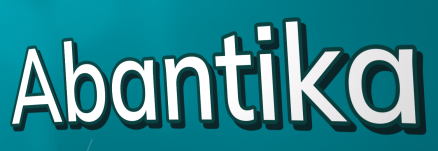
Abantika